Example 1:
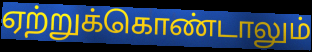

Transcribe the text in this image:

ஏற்றுக்கொண்டாலும்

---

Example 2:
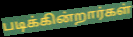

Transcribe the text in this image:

படிக்கின்றார்கள்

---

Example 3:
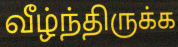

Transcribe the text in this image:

வீழ்ந்திருக்க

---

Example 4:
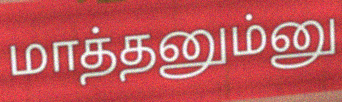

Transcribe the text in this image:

மாத்தனும்னு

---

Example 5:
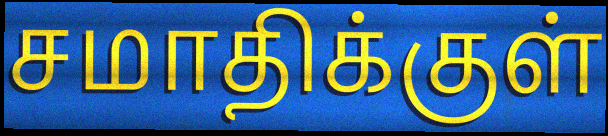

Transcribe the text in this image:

சமாதிக்குள்